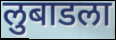
लुबाडला